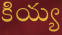
కియ్య